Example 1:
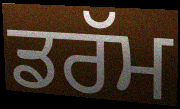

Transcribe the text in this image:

ਡਰੱਮ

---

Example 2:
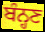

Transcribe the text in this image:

ਬੰਨ੍ਹਣ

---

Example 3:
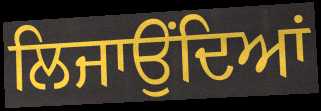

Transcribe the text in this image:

ਲਿਜਾਉਂਦਿਆਂ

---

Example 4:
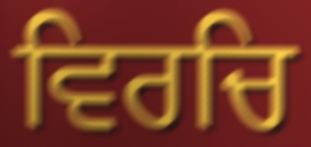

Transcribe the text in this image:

ਵਿਰਚਿ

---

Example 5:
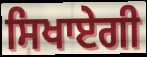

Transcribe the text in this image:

ਸਿਖਾਏਗੀ